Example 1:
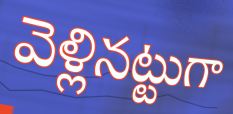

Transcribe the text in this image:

వెళ్లినట్టుగా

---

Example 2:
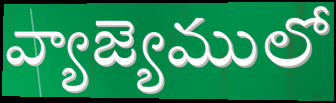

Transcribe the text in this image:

వ్యాజ్యెములో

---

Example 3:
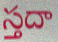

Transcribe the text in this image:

స్తదా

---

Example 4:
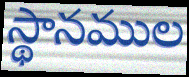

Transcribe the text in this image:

స్థానముల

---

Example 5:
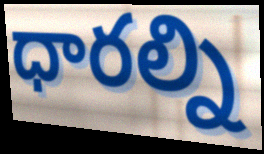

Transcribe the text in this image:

ధారల్ని